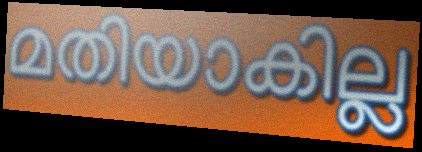
മതിയാകില്ല